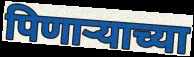
पिणाऱ्याच्या